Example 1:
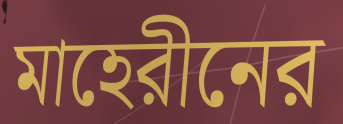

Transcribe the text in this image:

মাহেরীনের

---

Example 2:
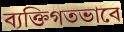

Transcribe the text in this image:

ব্যক্তিগতভাবে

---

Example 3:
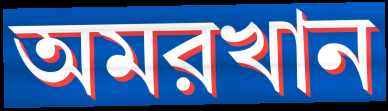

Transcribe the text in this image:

অমরখান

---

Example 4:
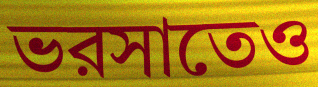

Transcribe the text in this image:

ভরসাতেও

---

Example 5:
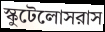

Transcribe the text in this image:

স্কুটেলোসরাস